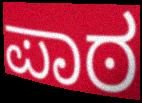
ಪಾಠ